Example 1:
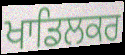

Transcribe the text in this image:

ਖਾਡਿਲਕਰ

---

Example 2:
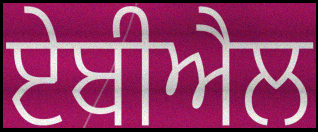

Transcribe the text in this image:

ਏਬੀਐਲ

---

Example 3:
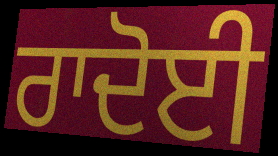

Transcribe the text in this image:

ਰਾਦੋਈ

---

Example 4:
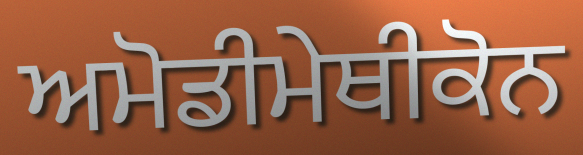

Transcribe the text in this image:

ਅਮੋਡੀਮੇਥੀਕੋਨ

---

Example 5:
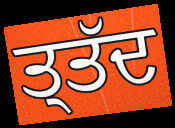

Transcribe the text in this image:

ਤ੍ਤੱਦ